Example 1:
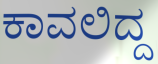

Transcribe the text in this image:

ಕಾವಲಿದ್ದ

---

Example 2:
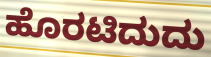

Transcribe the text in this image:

ಹೊರಟಿದುದು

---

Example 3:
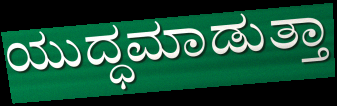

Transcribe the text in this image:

ಯುದ್ಧಮಾಡುತ್ತಾ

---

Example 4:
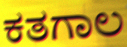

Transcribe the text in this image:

ಕತಗಾಲ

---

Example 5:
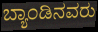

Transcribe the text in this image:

ಬ್ಯಾಂಡಿನವರು